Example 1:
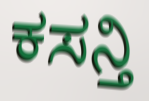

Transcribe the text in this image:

ಕಸನ್ತಿ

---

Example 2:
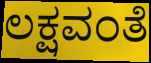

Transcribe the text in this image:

ಲಕ್ಷವಂತೆ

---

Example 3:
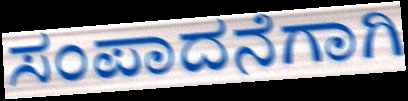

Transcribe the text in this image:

ಸಂಪಾದನೆಗಾಗಿ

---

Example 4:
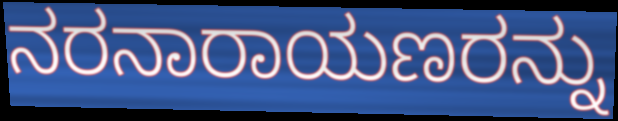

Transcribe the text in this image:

ನರನಾರಾಯಣರನ್ನು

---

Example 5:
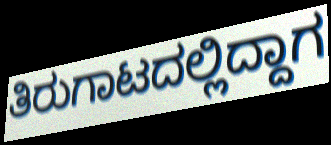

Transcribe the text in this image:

ತಿರುಗಾಟದಲ್ಲಿದ್ದಾಗ